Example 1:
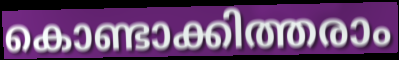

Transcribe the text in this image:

കൊണ്ടാക്കിത്തരാം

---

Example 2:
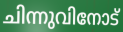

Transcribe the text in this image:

ചിന്നുവിനോട്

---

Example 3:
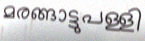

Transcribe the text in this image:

മരങ്ങാട്ടുപള്ളി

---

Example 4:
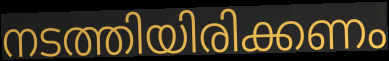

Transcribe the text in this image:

നടത്തിയിരിക്കണം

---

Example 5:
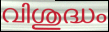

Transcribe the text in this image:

വിശുദ്ധം